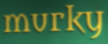
murky